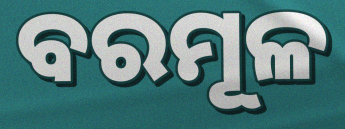
ବରମୂଳ